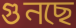
গুনছে